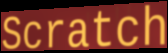
Scratch